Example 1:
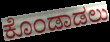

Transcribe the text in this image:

ಕೊಂಡಾಡಲು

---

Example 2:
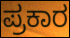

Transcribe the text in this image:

ಪ್ರಕಾರ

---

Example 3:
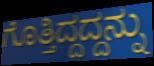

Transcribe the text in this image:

ಗೊತ್ತಿದ್ದದ್ದನ್ನು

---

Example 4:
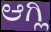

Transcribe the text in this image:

ಆಗ್ಲಿ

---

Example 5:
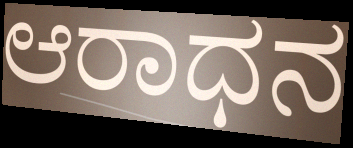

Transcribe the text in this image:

ಆರಾಧನ